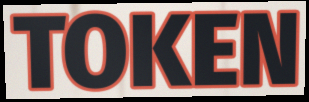
TOKEN